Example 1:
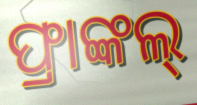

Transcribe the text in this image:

ଫ୍ରାଙ୍କଲ୍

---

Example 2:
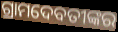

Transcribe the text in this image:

ଗ୍ରାମଦେବତୀଙ୍କର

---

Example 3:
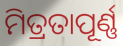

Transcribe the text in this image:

ମିତ୍ରତାପୂର୍ଣ୍ଣ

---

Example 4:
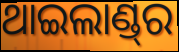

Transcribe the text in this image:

ଥାଇଲାଣ୍ଡ୍‌ର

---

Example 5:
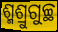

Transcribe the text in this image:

ଶ୍ମଶ୍ରୁଗୁଚ୍ଛ